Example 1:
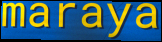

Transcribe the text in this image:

maraya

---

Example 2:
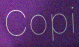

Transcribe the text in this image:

Copi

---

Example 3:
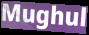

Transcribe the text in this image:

Mughul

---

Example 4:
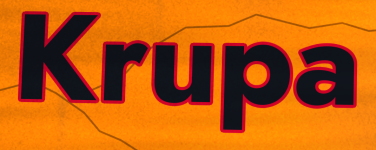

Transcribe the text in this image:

Krupa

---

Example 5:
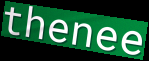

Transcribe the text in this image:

thenee